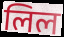
लिल